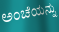
ಅಂಚೆಯನ್ನು